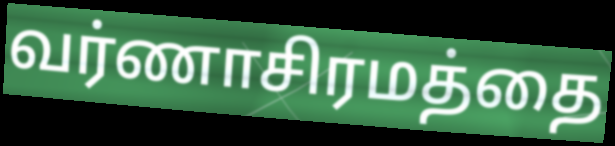
வர்ணாசிரமத்தை